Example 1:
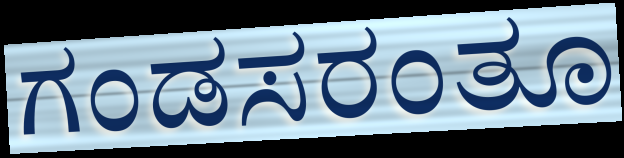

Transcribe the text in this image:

ಗಂಡಸರಂತೂ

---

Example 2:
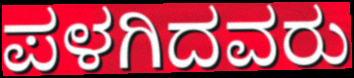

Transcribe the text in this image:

ಪಳಗಿದವರು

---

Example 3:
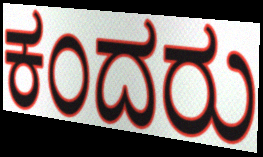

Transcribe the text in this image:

ಕಂದರು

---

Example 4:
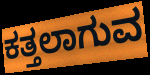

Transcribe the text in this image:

ಕತ್ತಲಾಗುವ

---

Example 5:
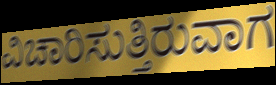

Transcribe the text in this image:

ವಿಚಾರಿಸುತ್ತಿರುವಾಗ